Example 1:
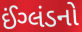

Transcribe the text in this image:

ઈંગ્લંડનો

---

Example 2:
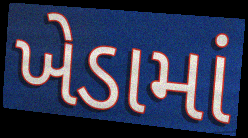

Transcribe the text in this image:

ખેડામાં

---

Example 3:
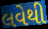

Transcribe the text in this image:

લવેથી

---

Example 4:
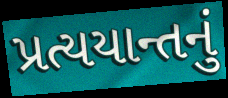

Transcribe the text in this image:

પ્રત્યયાન્તનું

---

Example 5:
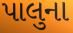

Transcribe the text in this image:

પાલુના